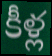
కీళ్ల